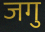
जगु